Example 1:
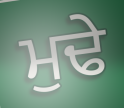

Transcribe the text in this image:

ਮੁਢੇ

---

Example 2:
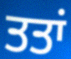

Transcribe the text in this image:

ਤਤਾਂ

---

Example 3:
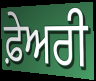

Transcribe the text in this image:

ਫ਼ੇਅਰੀ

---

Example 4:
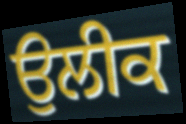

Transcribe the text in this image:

ਉਲੀਕ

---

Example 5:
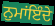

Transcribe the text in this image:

ਨੁਮਾਂਇੰਦੇ